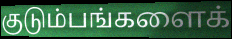
குடும்பங்களைக்